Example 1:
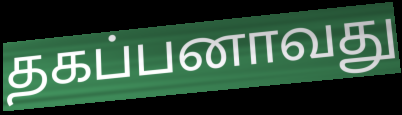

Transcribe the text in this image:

தகப்பனாவது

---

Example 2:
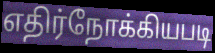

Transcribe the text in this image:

எதிர்நோக்கியபடி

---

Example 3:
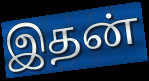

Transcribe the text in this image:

இதன்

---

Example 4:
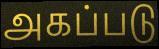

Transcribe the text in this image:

அகப்படு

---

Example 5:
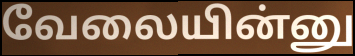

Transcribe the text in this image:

வேலையின்னு